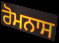
ਰੋਮਨਾਸ